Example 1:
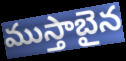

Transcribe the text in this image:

ముస్తాబైన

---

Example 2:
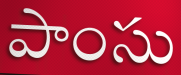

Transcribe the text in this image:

పాంసు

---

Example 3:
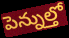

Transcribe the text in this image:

పెన్నుల్తో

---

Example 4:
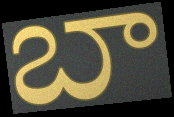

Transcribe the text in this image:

బా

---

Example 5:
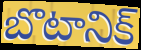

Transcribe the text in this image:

బొటానిక్